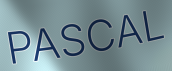
PASCAL